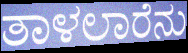
ತಾಳಲಾರೆನು